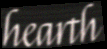
hearth